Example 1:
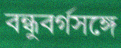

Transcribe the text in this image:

বন্ধুবর্গসঙ্গে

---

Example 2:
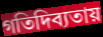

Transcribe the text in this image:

গতিদিব্যতায়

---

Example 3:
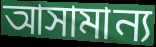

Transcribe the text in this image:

আসামান্য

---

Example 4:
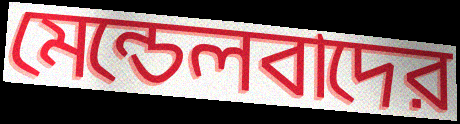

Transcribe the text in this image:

মেন্ডেলবাদের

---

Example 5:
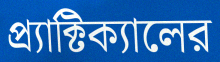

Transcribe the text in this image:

প্র্যাক্টিক্যালের